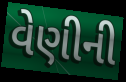
વેણીની